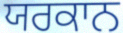
ਯਰਕਾਨ